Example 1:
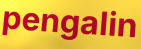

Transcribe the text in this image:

pengalin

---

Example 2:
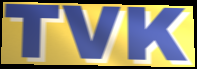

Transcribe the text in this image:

TVK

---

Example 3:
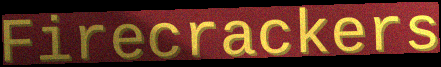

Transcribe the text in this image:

Firecrackers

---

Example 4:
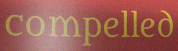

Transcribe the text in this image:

compelled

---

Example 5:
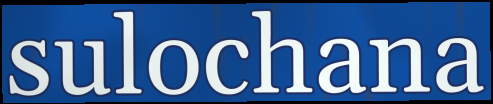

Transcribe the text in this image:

sulochana